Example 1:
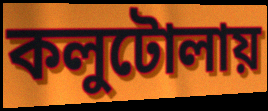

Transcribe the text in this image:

কলুটোলায়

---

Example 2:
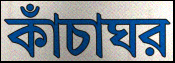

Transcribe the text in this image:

কাঁচাঘর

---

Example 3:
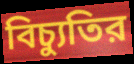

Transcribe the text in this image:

বিচ্যুতির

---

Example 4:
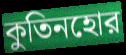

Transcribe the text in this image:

কুতিনহোর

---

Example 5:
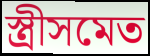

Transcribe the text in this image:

স্ত্রীসমেত